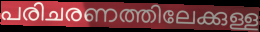
പരിചരണത്തിലേക്കുള്ള